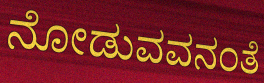
ನೋಡುವವನಂತೆ